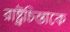
রাষ্ট্রচিন্তাকে